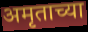
अमृताच्या